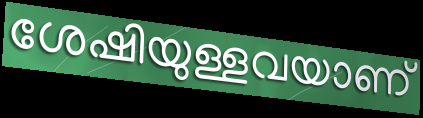
ശേഷിയുള്ളവയാണ്